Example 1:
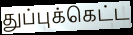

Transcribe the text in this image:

துப்புக்கெட்ட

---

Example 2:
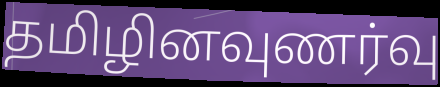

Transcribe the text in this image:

தமிழினவுணர்வு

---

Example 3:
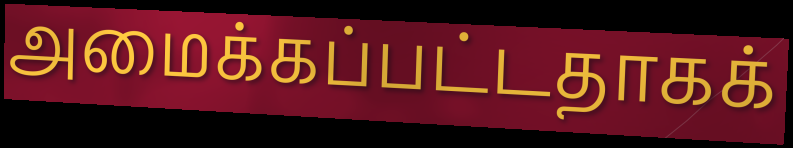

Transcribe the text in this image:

அமைக்கப்பட்டதாகக்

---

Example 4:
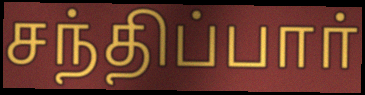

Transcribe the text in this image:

சந்திப்பார்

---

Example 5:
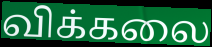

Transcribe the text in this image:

விக்கலை